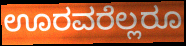
ಊರವರೆಲ್ಲರೂ